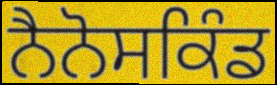
ਨੈਨੋਸਕਿੰਡ